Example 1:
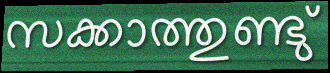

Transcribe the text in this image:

സക്കാത്തുണ്ടു്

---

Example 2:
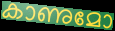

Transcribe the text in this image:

കാണുമോ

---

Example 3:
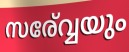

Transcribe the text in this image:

സര്വ്വേയും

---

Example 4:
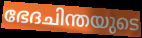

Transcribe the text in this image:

ഭേദചിന്തയുടെ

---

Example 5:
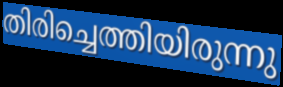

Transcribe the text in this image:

തിരിച്ചെത്തിയിരുന്നു